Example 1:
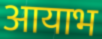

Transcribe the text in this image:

आयाभ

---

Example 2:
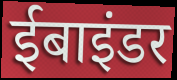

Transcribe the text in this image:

ईबाइंडर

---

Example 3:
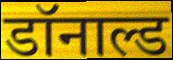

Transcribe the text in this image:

डॉनाल्ड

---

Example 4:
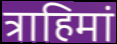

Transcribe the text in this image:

त्राहिमां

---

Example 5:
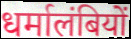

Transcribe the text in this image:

धर्मालंबियों